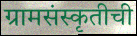
ग्रामसंस्कृतीची